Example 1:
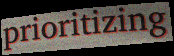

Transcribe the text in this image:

prioritizing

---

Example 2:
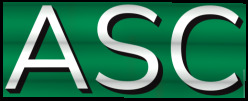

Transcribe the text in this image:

ASC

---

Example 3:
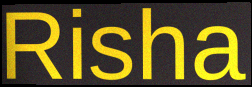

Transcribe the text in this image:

Risha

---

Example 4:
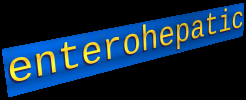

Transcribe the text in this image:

enterohepatic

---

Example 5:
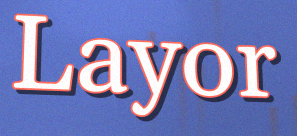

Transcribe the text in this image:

Layor